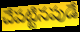
చేపట్టినపుడే